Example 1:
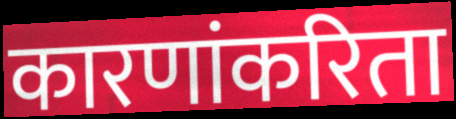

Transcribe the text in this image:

कारणांकरिता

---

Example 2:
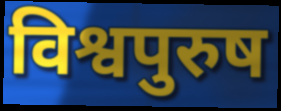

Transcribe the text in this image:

विश्वपुरुष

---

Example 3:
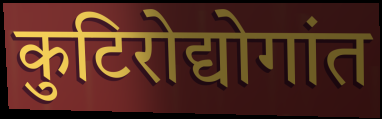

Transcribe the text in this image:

कुटिरोद्योगांत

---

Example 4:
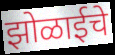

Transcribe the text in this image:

झोळाईचे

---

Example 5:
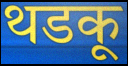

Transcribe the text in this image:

थडकू